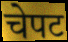
चेपट